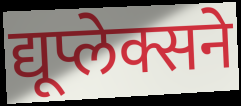
द्यूप्लेक्सने